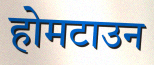
होमटाउन